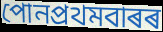
পোনপ্ৰথমবাৰৰ